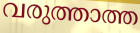
വരുത്താത്ത